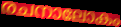
രചനാലോകം